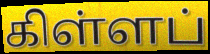
கிள்ளப்